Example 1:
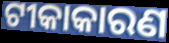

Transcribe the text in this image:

ଟୀକାକାରଣ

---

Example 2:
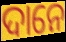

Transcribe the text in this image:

ଦାନେ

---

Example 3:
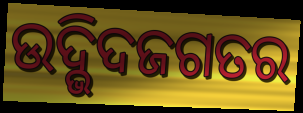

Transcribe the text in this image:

ଉଦ୍ଭିଦଜଗତର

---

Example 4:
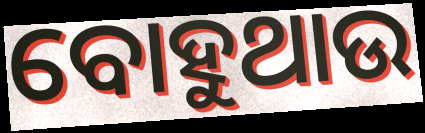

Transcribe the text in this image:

ବୋହୁଥାଉ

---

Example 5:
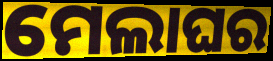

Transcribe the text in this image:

ମେଲାଘର